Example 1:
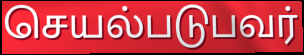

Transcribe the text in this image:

செயல்படுபவர்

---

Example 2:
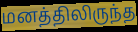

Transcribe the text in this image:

மனத்திலிருந்த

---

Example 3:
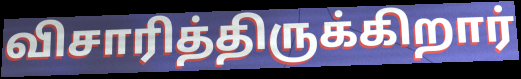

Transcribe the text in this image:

விசாரித்திருக்கிறார்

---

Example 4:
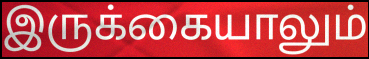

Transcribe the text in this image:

இருக்கையாலும்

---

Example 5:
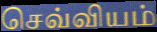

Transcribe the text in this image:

செவ்வியம்